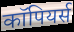
कॉपियर्स